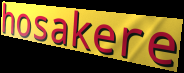
hosakere